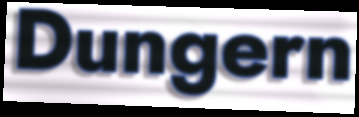
Dungern